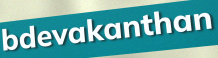
bdevakanthan